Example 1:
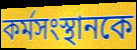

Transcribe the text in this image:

কর্মসংস্থানকে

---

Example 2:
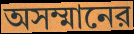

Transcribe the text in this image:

অসম্মানের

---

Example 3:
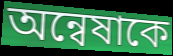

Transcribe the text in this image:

অন্বেষাকে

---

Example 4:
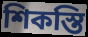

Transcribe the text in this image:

শিকস্তি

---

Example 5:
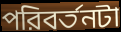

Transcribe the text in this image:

পরিবর্তনটা